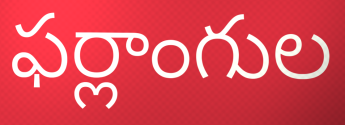
ఫర్లాంగుల